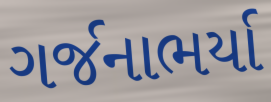
ગર્જનાભર્યા